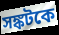
সঙ্কটকে